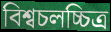
বিশ্বচলচ্চিত্র